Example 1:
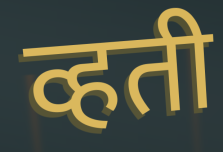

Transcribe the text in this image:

व्हती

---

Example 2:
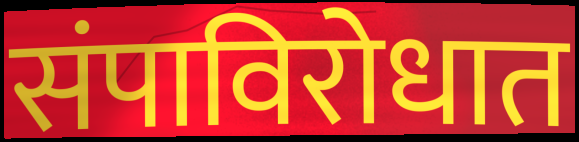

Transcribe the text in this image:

संपाविरोधात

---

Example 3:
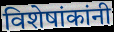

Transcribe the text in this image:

विशेषांकांनी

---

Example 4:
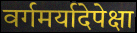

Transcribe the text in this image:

वर्गमर्यादेपेक्षा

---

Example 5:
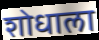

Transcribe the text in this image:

शोधाला